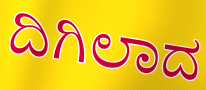
ದಿಗಿಲಾದ